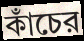
কাঁচের